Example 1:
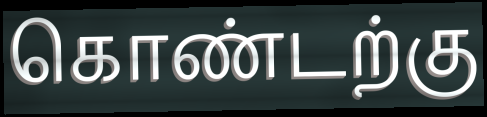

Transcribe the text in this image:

கொண்டற்கு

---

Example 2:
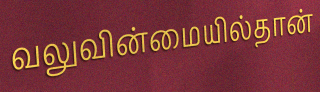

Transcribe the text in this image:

வலுவின்மையில்தான்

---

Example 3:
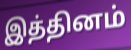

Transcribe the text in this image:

இத்தினம்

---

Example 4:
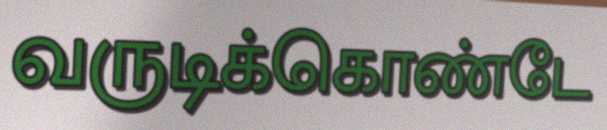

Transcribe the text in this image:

வருடிக்கொண்டே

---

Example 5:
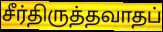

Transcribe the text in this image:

சீர்திருத்தவாதப்